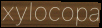
xylocopa